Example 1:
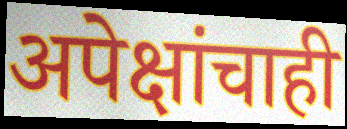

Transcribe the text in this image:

अपेक्षांचाही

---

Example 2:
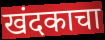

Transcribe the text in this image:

खंदकाचा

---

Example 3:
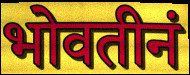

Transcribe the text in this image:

भोवतीनं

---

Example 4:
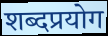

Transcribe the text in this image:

शब्दप्रयोग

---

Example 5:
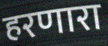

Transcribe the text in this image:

हरणारा